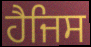
ਹੈਜਿਸ